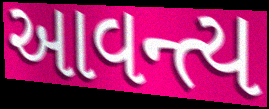
આવન્ત્ય